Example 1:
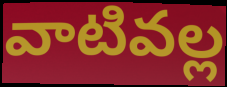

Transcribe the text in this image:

వాటివల్ల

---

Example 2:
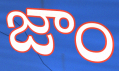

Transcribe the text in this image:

జాం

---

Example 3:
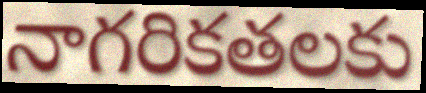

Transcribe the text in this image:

నాగరికతలకు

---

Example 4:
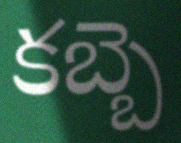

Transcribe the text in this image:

కబ్బె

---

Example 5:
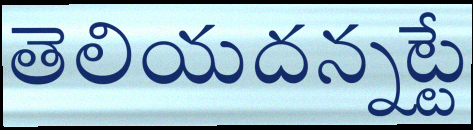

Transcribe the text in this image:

తెలియదన్నట్టే